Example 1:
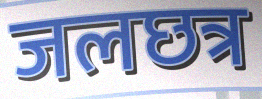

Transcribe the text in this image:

जलछत्र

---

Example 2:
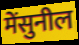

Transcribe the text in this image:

मेंसुनील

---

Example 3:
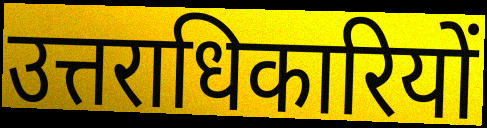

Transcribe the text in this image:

उत्तराधिकारियों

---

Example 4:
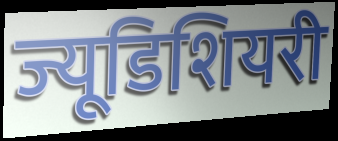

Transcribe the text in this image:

ज्यूडिशियरी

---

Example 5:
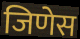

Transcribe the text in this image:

जिणेस